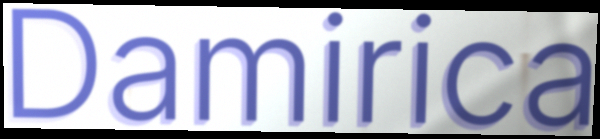
Damirica